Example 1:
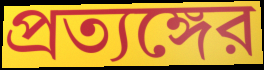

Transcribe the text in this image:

প্রত্যঙ্গের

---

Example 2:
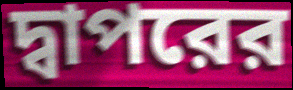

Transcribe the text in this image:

দ্বাপরের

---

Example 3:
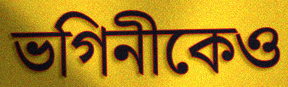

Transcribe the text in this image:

ভগিনীকেও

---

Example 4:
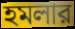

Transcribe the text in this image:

হমলার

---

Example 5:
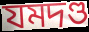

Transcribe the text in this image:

যমদণ্ড